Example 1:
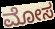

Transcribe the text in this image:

ಮೋಸ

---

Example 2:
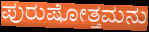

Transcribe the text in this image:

ಪುರುಷೋತ್ತಮನು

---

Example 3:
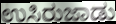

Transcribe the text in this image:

ಉಸಿರುಜಾಡು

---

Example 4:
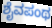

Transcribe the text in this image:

ಶೈವಪಂಥ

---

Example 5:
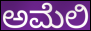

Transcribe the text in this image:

ಅಮೆಲಿ